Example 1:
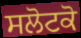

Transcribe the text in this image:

ਸਲੋਟਕੋ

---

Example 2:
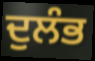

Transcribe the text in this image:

ਦੁਲੰਭ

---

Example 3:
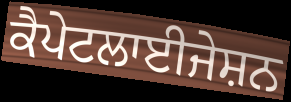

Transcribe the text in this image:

ਕੈਪੇਟਲਾਈਜੇਸ਼ਨ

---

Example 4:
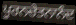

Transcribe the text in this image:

ਪੂਰਨਚੇਤਨਾਨੰਦ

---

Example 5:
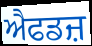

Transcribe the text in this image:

ਐਫਡਜ਼